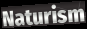
Naturism